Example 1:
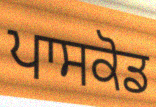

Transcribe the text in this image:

ਪਾਸਕੋਡ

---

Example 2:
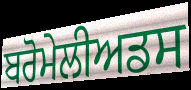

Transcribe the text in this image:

ਬਰੋਮੇਲੀਅਡਸ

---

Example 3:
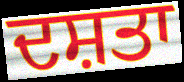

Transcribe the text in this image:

ਦਸ਼ਤਾ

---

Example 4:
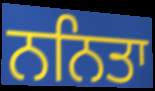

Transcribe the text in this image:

ਨਨਿਤਾ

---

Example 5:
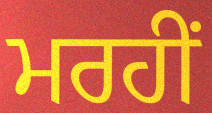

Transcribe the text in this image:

ਮਰਹੀਂ